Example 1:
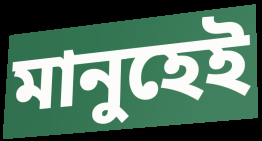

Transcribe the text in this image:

মানুহেই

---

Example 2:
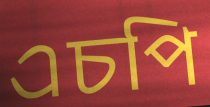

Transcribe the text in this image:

এচপি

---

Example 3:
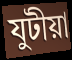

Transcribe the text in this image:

যুটীয়া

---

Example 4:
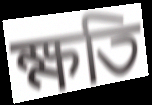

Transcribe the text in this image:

ক্ষতি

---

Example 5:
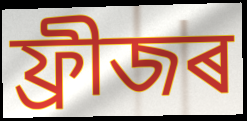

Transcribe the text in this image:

ফ্ৰীজৰ